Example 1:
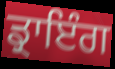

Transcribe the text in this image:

ਡ੍ਰਾਇੰਗ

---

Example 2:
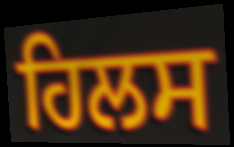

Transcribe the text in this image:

ਹਿਲਸ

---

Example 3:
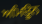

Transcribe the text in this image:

ਅਮਿਊਨ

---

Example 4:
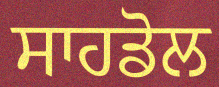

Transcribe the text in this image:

ਸਾਹਡੋਲ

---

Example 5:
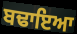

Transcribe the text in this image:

ਬਢਾਇਆ